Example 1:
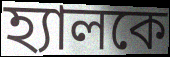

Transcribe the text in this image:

হ্যালকে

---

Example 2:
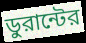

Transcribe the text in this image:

ডুরান্টের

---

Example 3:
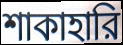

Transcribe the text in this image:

শাকাহারি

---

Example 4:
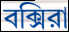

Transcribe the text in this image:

বক্সিরা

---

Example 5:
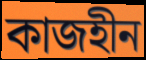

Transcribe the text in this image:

কাজহীন